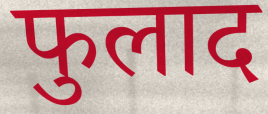
फुलाद